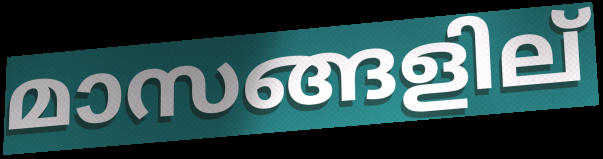
മാസങ്ങളില്